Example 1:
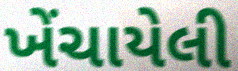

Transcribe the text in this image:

ખેંચાયેલી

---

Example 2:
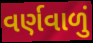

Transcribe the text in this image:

વર્ણવાળું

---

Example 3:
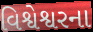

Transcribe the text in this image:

વિશ્વેશ્વરના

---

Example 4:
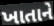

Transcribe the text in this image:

ખાતાને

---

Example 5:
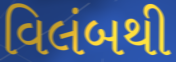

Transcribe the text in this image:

વિલંબથી